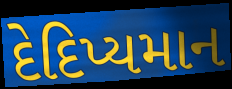
દેદિપ્યમાન